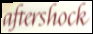
aftershock